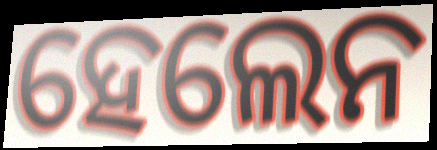
ହେଲେନ